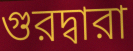
গুরদ্বারা